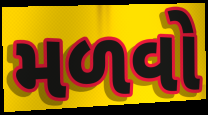
મળવો